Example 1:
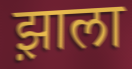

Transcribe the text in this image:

झ़ाला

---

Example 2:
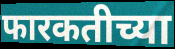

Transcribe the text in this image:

फारकतीच्या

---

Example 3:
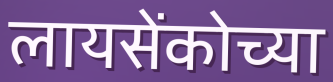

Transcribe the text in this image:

लायसेंकोच्या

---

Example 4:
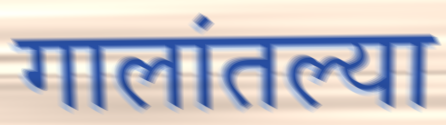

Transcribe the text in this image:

गालांतल्या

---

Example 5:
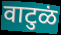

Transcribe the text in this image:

वाटुळं